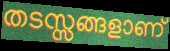
തടസ്സങ്ങളാണ്